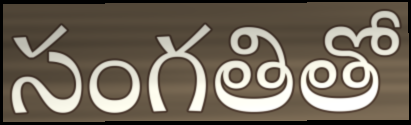
సంగతితో